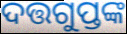
ଦତ୍ତଗୁପ୍ତଙ୍କ